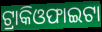
ଟ୍ରାକିଓଫାଇଟା